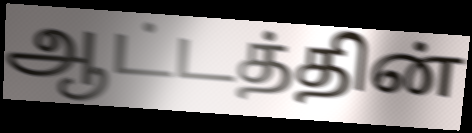
ஆட்டத்தின்